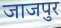
जाजपुर